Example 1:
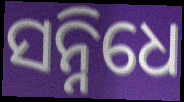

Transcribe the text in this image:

ସନ୍ନିଧେ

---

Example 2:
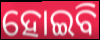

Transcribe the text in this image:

ହୋଇବି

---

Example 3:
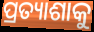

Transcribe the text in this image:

ପ୍ରତ୍ୟାଶାକୁ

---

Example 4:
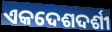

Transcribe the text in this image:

ଏକଦେଶଦର୍ଶୀ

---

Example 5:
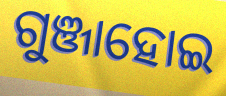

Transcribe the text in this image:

ଗୁଞ୍ଜାହୋଇ